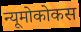
न्यूमोकोकस